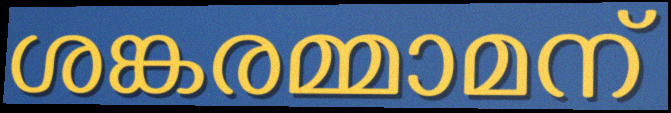
ശങ്കരമ്മാമന്